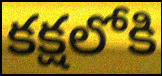
కక్షలోకి